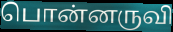
பொன்னருவி